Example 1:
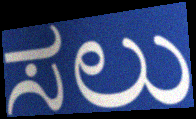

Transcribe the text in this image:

ಸಲು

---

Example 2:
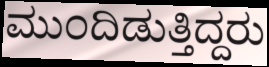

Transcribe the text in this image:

ಮುಂದಿಡುತ್ತಿದ್ದರು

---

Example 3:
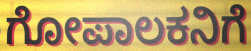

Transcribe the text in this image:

ಗೋಪಾಲಕನಿಗೆ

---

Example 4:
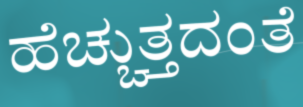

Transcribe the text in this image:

ಹೆಚ್ಚುತ್ತದಂತೆ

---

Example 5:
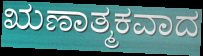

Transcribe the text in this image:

ಋಣಾತ್ಮಕವಾದ